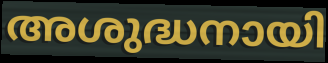
അശുദ്ധനായി